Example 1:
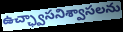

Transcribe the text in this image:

ఉచ్ఛ్వాసనిశ్వాసలను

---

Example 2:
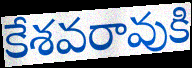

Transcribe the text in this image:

కేశవరావుకి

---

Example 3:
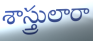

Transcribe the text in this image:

శాస్త్రులారా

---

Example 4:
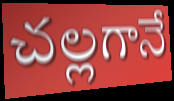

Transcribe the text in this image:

చల్లగానే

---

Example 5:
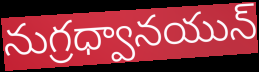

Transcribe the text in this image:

నుగ్రధ్వానయున్